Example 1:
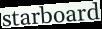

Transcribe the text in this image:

starboard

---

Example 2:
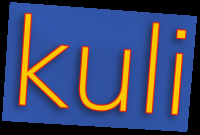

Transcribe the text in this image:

kuli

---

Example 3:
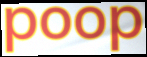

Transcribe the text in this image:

poop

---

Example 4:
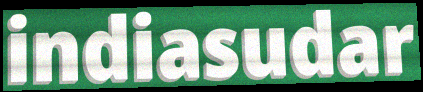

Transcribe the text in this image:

indiasudar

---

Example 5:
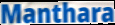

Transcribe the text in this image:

Manthara